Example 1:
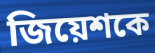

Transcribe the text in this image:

জিয়েশকে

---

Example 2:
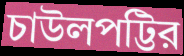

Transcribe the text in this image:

চাউলপট্টির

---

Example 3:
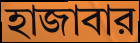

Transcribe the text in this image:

হাজাবার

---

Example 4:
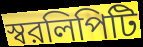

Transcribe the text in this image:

স্বরলিপিটি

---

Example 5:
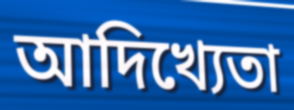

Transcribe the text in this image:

আদিখ্যেতা